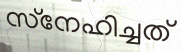
സ്‌നേഹിച്ചത്